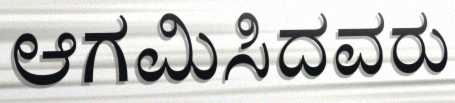
ಆಗಮಿಸಿದವರು